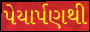
પેયાર્પણથી